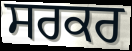
ਸਰਕਰ